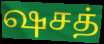
ஷசத்